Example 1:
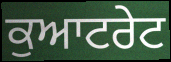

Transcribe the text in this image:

ਕੁਆਟਰੇਟ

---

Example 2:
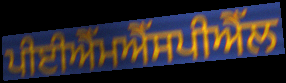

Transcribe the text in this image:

ਪੀਈਐੱਮਐੱਸਪੀਐੱਲ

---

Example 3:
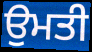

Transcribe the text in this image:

ਉਮਤੀ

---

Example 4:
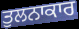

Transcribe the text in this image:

ਤੁਲਨਾਕਾਰ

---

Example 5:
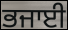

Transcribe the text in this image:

ਭਜਾਈ